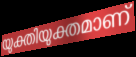
യുക്തിയുക്തമാണ്